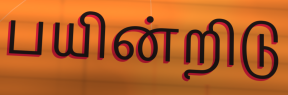
பயின்றிடு